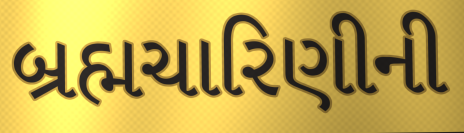
બ્રહ્મચારિણીની